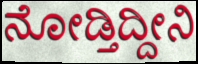
ನೋಡ್ತಿದ್ದೀನಿ